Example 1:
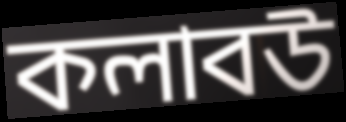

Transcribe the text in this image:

কলাবউ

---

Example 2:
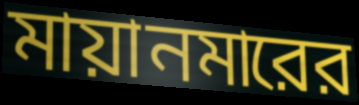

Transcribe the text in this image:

মায়ানমারের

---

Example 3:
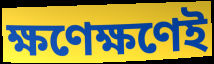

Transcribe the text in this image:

ক্ষণেক্ষণেই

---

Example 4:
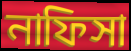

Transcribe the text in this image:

নাফিসা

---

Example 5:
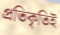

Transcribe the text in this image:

প্রতিকৃতিই